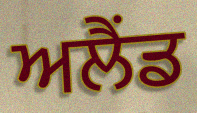
ਅਲੈਂਡ